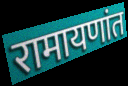
रामायणांत